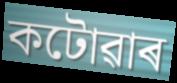
কটোৱাৰ